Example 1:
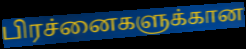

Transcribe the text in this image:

பிரச்னைகளுக்கான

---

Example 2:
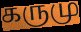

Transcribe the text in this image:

கருமு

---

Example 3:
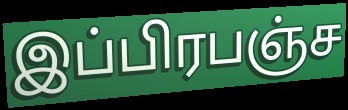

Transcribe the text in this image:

இப்பிரபஞ்ச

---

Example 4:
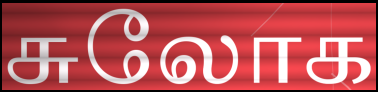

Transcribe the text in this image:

சுலோக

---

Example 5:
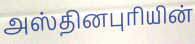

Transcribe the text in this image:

அஸ்தினபுரியின்